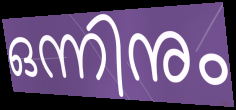
ഒന്നിനും